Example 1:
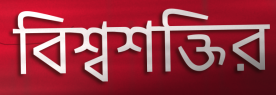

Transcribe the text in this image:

বিশ্বশক্তির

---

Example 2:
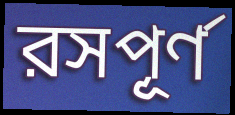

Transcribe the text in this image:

রসপূর্ণ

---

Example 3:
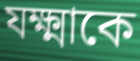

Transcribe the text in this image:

যক্ষ্মাকে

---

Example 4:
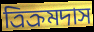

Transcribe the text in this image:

ত্রিক্রমদাস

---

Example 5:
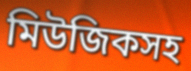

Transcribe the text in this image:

মিউজিকসহ